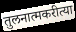
तुलनात्मकरीत्या